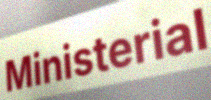
Ministerial